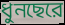
ধুনছেরে